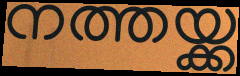
നത്തയ്ക്ക